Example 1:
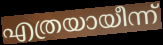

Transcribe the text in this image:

എത്രയായീന്ന്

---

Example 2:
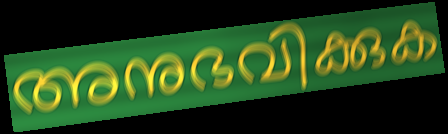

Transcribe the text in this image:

അനുഭവിക്കുക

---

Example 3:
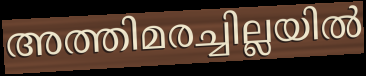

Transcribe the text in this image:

അത്തിമരച്ചില്ലയിൽ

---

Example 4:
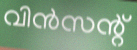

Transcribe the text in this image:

വിൻസന്റ്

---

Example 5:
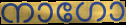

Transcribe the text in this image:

നാഗോ